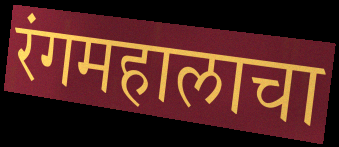
रंगमहालाचा